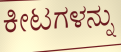
ಕೀಟಗಳನ್ನು